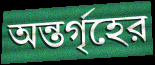
অন্তর্গৃহের